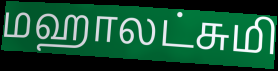
மஹாலட்சுமி